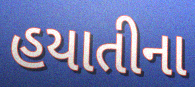
હયાતીના